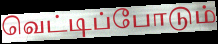
வெட்டிப்போடும்